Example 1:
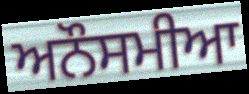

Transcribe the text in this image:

ਅਨੌਸਮੀਆ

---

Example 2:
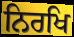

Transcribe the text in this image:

ਨਿਰਖਿ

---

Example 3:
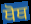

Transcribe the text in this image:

ਥੋਥ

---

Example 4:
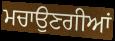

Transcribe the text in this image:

ਮਚਾਉਣਗੀਆਂ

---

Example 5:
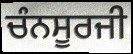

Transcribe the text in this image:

ਚੰਨਸੂਰਜੀ